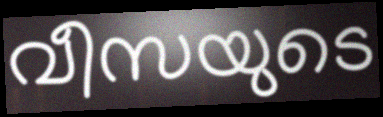
വീസയുടെ